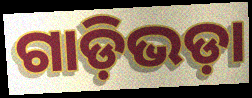
ଗାଡ଼ିଭଡ଼ା